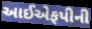
આઈએફપીની